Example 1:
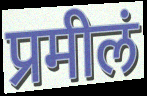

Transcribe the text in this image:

प्रमीलं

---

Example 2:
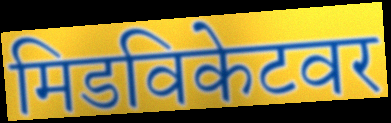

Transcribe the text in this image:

मिडविकेटवर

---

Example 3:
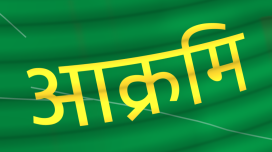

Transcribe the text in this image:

आक्रमि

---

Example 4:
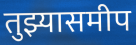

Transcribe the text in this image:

तुझ्यासमीप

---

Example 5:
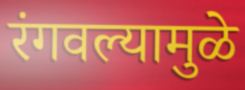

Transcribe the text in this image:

रंगवल्यामुळे